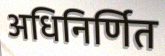
अधिनिर्णित